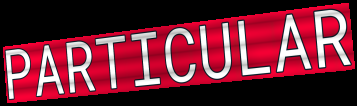
PARTICULAR